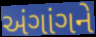
અંગાંગને